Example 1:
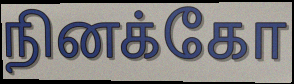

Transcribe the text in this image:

நினக்கோ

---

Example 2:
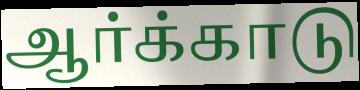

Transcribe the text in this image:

ஆர்க்காடு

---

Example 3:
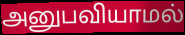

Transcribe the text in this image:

அனுபவியாமல்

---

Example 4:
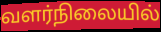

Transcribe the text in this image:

வளர்நிலையில்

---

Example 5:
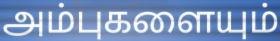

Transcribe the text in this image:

அம்புகளையும்